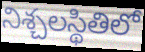
నిశ్చలస్థితిలో